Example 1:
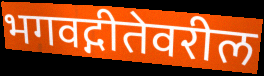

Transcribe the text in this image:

भगवद्गीतेवरील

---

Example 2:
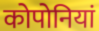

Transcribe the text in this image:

कोपोनियां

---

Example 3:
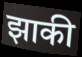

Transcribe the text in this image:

झाकी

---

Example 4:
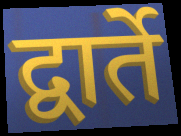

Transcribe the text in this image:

द्वार्ते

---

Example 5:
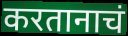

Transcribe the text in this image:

करतानाचं